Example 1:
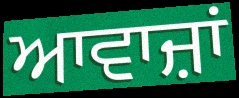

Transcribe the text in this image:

ਆਵਾਜ਼ਾਂ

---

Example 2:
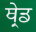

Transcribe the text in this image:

ਥ੍ਰੇਡ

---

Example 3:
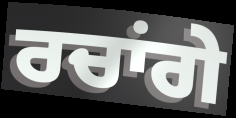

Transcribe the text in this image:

ਰਚਾਂਗੇ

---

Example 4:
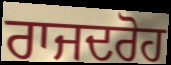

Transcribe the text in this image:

ਰਾਜਦਰੋਹ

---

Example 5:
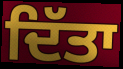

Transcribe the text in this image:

ਦਿੱਤਾ